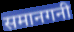
समानगनी